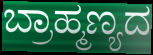
ಬ್ರಾಹ್ಮಣ್ಯದ